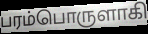
பரம்பொருளாகி